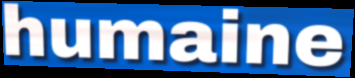
humaine